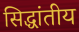
सिद्धांतीय